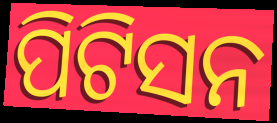
ପିଟିସନ